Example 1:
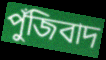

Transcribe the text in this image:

পুঁজিবাদ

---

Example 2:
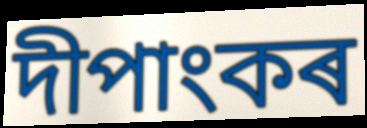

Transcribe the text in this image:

দীপাংকৰ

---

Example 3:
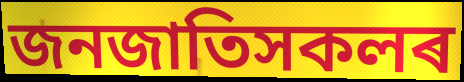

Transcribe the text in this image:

জনজাতিসকলৰ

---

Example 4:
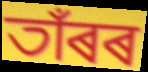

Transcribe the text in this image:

তাঁৰৰ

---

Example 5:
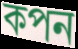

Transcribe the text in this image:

কপন